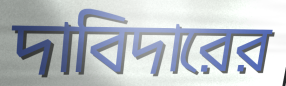
দাবিদারের